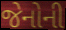
જેનોની